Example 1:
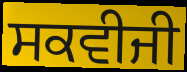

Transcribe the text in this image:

ਸਕਵੀਜੀ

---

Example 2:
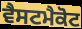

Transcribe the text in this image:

ਵੈਸਟਮੈਕੋਟ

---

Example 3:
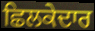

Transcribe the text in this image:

ਛਿਲਕੇਦਾਰ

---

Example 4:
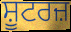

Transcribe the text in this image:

ਸ਼ੂਟਰਜ਼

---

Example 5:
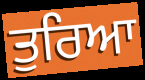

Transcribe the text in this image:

ਤੁਰਿਆ